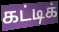
கட்டிக்